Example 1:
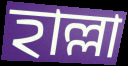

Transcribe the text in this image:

হাল্লা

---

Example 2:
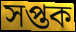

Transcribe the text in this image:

সপ্তক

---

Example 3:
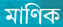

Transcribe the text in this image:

মাণিক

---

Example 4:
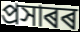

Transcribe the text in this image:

প্ৰসাৰৰ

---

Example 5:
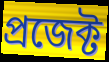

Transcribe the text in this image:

প্ৰজেক্ট